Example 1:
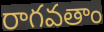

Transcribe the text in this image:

రాగవతాం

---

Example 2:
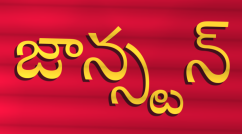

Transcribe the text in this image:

జాన్స్టన్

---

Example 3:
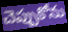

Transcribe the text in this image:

చెప్పుకోను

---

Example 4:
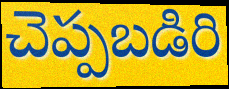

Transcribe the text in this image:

చెప్పబడిరి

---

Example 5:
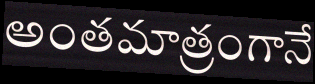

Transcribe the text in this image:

అంతమాత్రంగానే